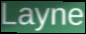
Layne